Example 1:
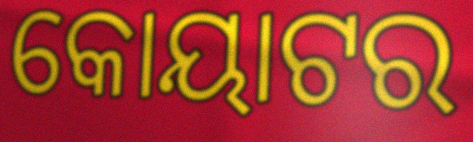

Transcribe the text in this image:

କୋୟାଟର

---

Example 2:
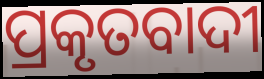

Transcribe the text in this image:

ପ୍ରକୃତବାଦୀ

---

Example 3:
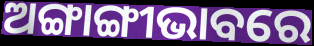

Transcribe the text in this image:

ଅଙ୍ଗାଙ୍ଗୀଭାବରେ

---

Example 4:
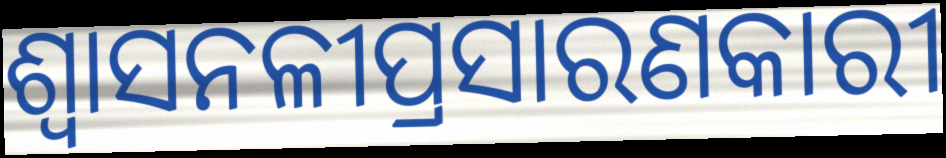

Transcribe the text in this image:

ଶ୍ୱାସନଳୀପ୍ରସାରଣକାରୀ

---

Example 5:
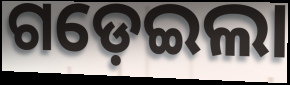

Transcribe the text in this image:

ଗଡ଼େଇଲା